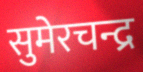
सुमेरचन्द्र